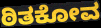
ಠಿತಕೋವ